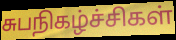
சுபநிகழ்ச்சிகள்